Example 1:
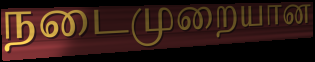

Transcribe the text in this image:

நடைமுறையான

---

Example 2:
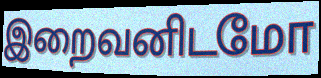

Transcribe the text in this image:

இறைவனிடமோ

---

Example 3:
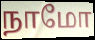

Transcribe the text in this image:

நாமோ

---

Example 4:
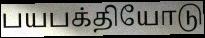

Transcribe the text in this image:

பயபக்தியோடு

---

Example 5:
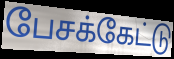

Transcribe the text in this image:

பேசக்கேட்டு